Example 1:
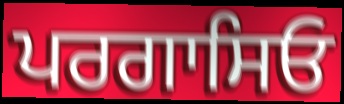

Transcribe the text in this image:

ਪਰਗਾਸਿਓ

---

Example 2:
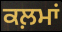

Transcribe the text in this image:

ਕਲ਼ਮਾਂ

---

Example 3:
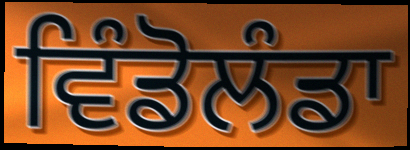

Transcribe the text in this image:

ਵਿੰਡੋਲੰਡਾ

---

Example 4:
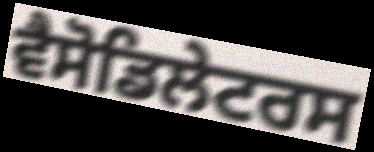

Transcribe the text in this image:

ਵੈਸੋਡਿਲੇਟਰਸ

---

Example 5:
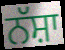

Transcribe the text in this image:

ਨੱਸ਼ਾ